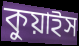
কুয়াইস